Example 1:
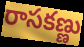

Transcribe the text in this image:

రాసకణ్ణు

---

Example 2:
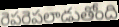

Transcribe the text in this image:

రెపరెపలాడుతోంది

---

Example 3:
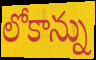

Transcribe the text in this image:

లోకాన్ను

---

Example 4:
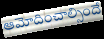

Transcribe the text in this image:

ఆమోదించాల్సిందే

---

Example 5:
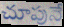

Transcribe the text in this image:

చూపునే